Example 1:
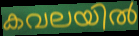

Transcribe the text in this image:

കവലയിൽ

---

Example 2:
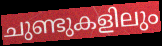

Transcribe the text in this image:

ചുണ്ടുകളിലും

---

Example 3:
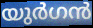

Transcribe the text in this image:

യുർഗൻ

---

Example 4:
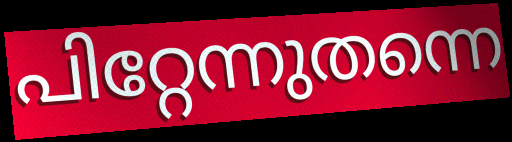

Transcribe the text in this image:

പിറ്റേന്നുതന്നെ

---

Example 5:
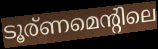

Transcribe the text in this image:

ടൂര്ണമെന്റിലെ